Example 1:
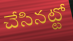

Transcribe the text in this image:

చేసినట్టో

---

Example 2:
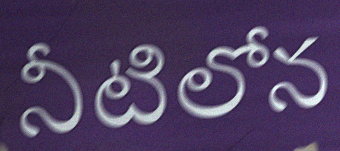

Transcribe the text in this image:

నీటిలోన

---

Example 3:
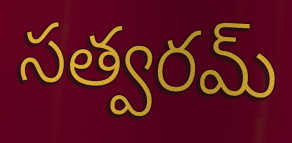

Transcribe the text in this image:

సత్వరమ్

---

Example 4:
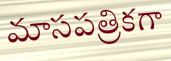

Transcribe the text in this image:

మాసపత్రికగా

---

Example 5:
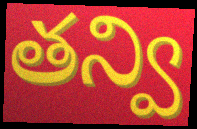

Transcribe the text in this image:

తన్వి